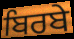
ਬਿਰਬੇ